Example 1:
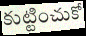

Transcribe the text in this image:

కుట్టించుకో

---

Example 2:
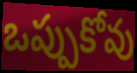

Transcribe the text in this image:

ఒప్పుకోవు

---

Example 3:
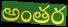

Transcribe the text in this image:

అంతర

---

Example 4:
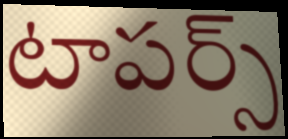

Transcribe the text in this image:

టాపర్స్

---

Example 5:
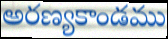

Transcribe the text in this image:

అరణ్యకాండము